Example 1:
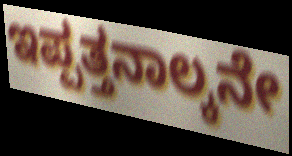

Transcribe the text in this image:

ಇಪ್ಪತ್ತನಾಲ್ಕನೇ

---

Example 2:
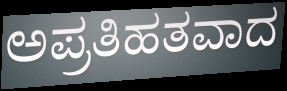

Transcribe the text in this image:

ಅಪ್ರತಿಹತವಾದ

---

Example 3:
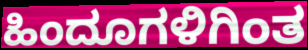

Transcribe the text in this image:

ಹಿಂದೂಗಳಿಗಿಂತ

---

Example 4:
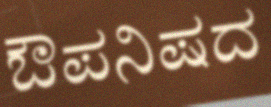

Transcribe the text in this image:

ಔಪನಿಷದ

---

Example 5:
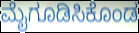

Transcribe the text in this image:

ಮೈಗೂಡಿಸಿಕೊಂಡ